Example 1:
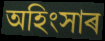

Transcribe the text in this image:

অহিংসাৰ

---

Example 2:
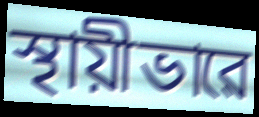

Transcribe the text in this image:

স্থায়ীভাৱে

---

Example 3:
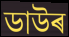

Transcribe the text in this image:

ডাউৰ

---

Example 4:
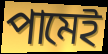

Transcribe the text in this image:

পামেই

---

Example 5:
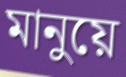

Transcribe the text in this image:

মানুয়ে